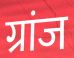
ग्रांज